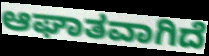
ಆಘಾತವಾಗಿದೆ